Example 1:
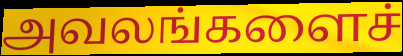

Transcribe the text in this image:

அவலங்களைச்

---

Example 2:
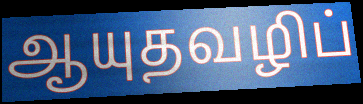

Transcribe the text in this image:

ஆயுதவழிப்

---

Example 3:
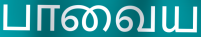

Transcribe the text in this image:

பாவைய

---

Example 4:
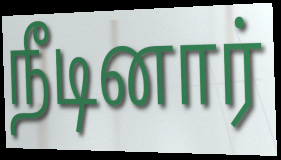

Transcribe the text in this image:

நீடினார்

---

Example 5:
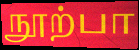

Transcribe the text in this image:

நூற்பா